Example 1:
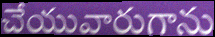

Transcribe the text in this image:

చేయువారుగాను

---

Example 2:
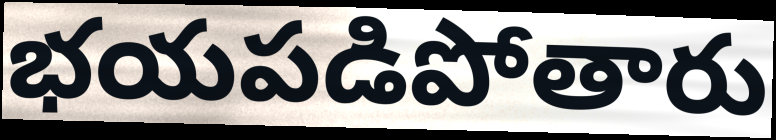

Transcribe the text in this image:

భయపడిపోతారు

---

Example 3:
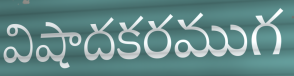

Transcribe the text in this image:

విషాదకరముగ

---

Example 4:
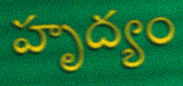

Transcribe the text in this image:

హృద్యం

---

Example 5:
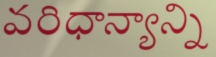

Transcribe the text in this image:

వరిధాన్యాన్ని